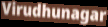
Virudhunagar